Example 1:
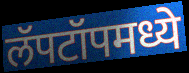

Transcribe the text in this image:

लॅपटॉपमध्ये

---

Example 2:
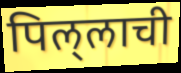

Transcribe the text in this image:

पिल्लाची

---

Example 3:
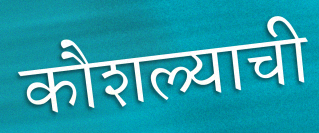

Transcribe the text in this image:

कौशल्याची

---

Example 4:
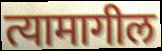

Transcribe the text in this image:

त्यामागील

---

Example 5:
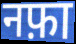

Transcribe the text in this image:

नफ़ा